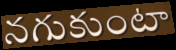
నగుకుంటా